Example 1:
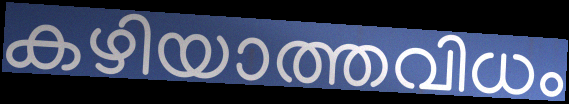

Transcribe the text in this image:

കഴിയാത്തവിധം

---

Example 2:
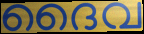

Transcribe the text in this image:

ദൈവ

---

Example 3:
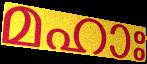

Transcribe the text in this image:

മഹാഃ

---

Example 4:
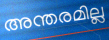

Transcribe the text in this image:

അന്തരമില്ല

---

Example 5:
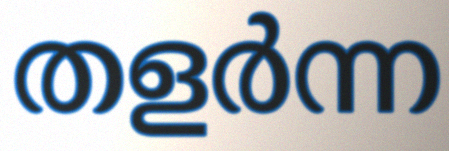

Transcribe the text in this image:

തളർന്ന